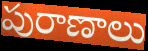
పురాణాలు